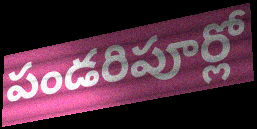
పండరిపూర్లో